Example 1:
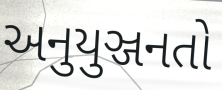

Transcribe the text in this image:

અનુયુઞ્જનતો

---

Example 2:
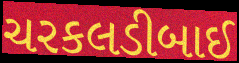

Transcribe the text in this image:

ચરકલડીબાઈ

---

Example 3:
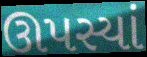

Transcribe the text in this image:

ઊપસ્યાં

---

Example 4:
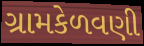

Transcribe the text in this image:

ગ્રામકેળવણી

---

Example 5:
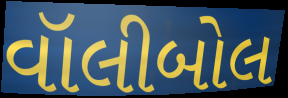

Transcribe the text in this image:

વૉલીબોલ